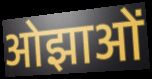
ओझाओं